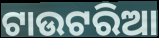
ଟାଉଟରିଆ